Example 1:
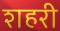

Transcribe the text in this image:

शहरी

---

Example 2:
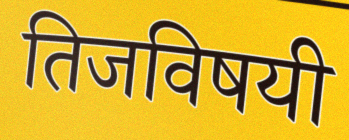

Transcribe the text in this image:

तिजविषयी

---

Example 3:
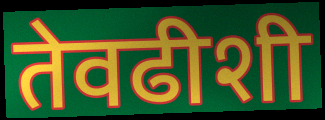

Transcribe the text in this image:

तेवढीशी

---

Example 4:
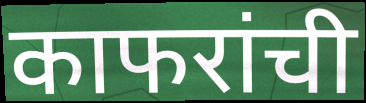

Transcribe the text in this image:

काफरांची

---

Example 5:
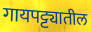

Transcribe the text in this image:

गायपट्ट्यातील